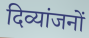
दिव्यांजनों